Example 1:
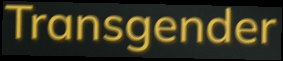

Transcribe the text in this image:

Transgender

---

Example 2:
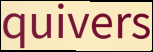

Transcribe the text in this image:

quivers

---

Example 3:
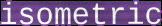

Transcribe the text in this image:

isometric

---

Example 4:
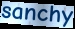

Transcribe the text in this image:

sanchy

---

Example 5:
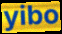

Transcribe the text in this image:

yibo